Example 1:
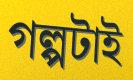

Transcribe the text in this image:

গল্পটাই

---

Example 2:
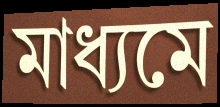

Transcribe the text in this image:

মাধ্যমে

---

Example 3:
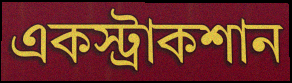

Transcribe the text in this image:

একস্ট্রাকশান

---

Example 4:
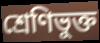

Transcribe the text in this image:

শ্রেণিভুক্ত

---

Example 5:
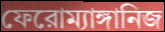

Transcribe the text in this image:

ফেরোম্যাঙ্গানিজ